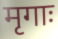
मृगाः